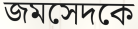
জমসেদকে